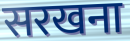
सरखना